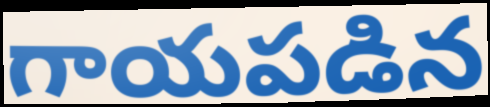
గాయపడిన